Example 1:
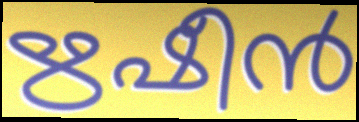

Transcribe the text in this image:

ഋഷീൻ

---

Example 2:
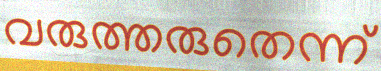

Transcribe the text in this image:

വരുത്തരുതെന്ന്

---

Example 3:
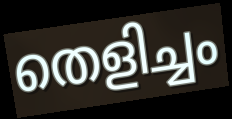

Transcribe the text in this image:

തെളിച്ചം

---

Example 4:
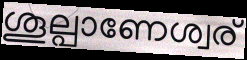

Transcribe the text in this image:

ശൂല്പാണേശ്വര്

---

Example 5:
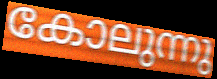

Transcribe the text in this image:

കോലുന്നു